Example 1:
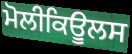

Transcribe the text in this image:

ਮੋਲੀਕਿਊਲਸ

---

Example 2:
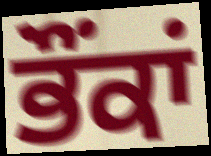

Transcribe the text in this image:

ਭੌਂਕਾਂ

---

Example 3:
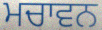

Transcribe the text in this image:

ਮਚਾਵਨ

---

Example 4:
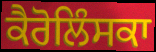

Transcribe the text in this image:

ਕੈਰੋਲਿੰਸਕਾ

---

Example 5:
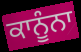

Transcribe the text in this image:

ਕਾਨੂੰਨਾ